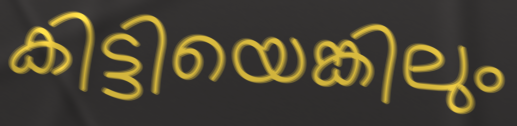
കിട്ടിയെങ്കിലും